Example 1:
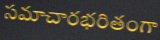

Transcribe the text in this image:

సమాచారభరితంగా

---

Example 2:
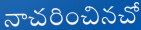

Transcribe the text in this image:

నాచరించినచో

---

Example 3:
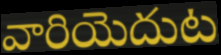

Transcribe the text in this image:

వారియెదుట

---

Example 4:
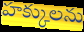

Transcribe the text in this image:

హక్కులను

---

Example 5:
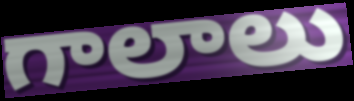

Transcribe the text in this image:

గాలాలు